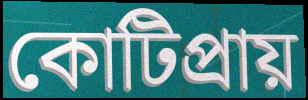
কোটিপ্ৰায়